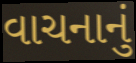
વાચનાનું